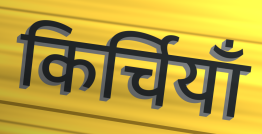
किर्चियाँ